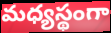
మధ్యస్థంగా